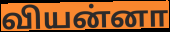
வியன்னா